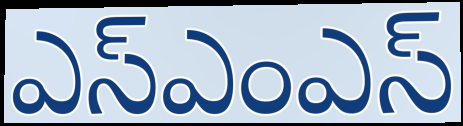
ఎస్ఎంఎస్